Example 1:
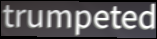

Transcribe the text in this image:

trumpeted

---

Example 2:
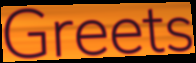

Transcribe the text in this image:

Greets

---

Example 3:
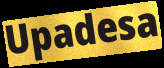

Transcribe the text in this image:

Upadesa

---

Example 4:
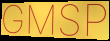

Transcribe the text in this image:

GMSP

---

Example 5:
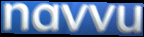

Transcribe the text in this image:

navvu